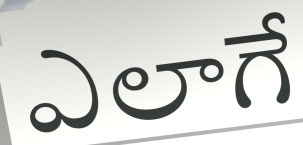
ఎలాగే